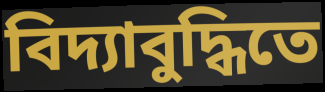
বিদ্যাবুদ্ধিতে